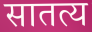
सातत्य